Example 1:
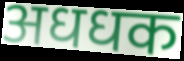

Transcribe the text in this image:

अधधक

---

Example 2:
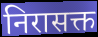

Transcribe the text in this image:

निरासक्त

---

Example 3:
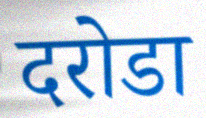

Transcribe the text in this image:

दरोडा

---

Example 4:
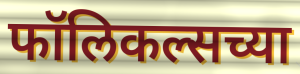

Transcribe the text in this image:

फॉलिकल्सच्या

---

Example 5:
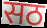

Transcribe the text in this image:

सठ